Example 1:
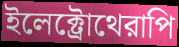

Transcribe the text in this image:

ইলেক্ট্রোথেরাপি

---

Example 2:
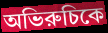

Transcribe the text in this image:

অভিরুচিকে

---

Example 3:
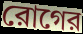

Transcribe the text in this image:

রোগের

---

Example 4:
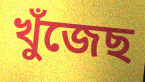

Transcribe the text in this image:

খুঁজেছ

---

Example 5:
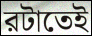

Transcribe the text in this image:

রটাতেই